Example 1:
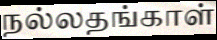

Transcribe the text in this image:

நல்லதங்காள்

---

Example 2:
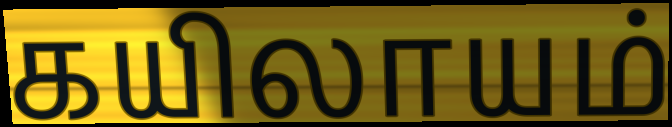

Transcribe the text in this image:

கயிலாயம்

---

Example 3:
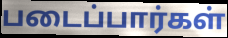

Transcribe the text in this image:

படைப்பார்கள்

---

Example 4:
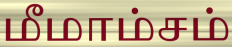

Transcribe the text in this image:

மீமாம்சம்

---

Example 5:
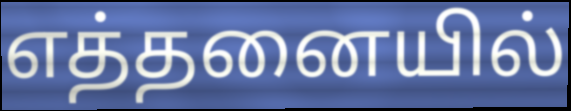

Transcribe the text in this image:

எத்தனையில்